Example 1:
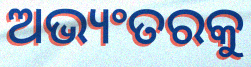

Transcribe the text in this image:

ଅଭ୍ୟଂତରକୁ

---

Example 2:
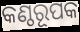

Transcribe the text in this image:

କଣ୍ଠରୂପକ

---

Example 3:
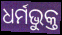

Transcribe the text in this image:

ଧର୍ମଭୁକ୍ତ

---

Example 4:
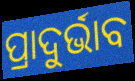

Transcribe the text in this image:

ପ୍ରାଦୁର୍ଭାବ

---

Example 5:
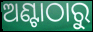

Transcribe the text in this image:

ଅଣ୍ଟାଠାରୁ